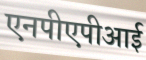
एनपीएपीआई